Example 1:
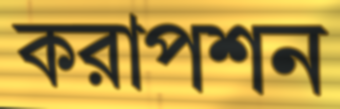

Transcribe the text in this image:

করাপশন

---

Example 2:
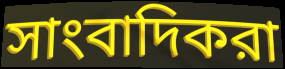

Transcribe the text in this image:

সাংবাদিকরা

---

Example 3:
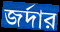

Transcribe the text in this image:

জর্দার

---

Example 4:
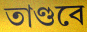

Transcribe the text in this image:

তাণ্ডবে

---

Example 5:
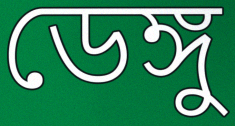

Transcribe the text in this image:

ডেঙ্গু